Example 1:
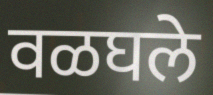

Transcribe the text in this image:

वळघले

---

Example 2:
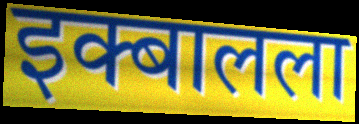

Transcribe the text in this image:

इक्बालला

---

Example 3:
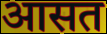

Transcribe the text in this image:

आसत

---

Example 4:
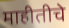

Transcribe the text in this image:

माहीतीचे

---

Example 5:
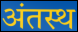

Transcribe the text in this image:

अंतस्थ